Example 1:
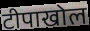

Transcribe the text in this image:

टीपाखोल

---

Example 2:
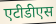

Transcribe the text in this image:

एटीडीएस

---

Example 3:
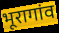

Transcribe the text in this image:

भूरागांव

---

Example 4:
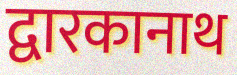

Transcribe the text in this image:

द्वारकानाथ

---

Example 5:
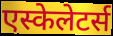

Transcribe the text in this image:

एस्केलेटर्स